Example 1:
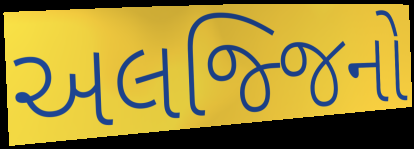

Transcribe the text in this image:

અલજ્જિનો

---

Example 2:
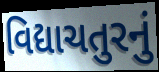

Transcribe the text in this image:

વિદ્યાચતુરનું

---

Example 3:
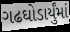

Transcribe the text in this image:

ગઢઘોડાર્યુંમાં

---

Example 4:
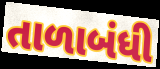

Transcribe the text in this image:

તાળાબંધી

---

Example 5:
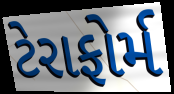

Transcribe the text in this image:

ટેરાફોર્મ